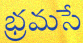
భ్రమసే